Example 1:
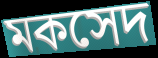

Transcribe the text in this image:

মকসেদ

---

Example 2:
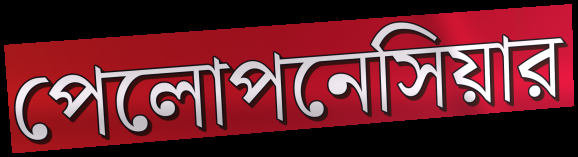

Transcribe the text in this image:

পেলোপনেসিয়ার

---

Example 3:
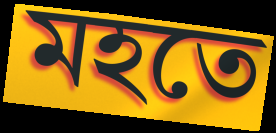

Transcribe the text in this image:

মহতে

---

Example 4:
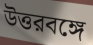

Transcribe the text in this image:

উত্তরবঙ্গে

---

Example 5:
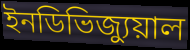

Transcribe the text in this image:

ইনডিভিজ্যুয়াল